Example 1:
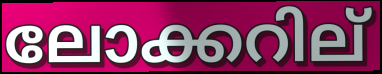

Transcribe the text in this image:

ലോക്കറില്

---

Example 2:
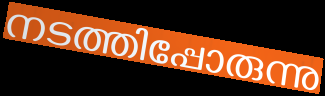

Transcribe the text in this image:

നടത്തിപ്പോരുന്നു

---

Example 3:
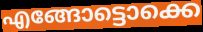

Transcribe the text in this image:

എങ്ങോട്ടൊക്കെ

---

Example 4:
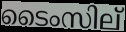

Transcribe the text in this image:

ടൈംസില്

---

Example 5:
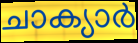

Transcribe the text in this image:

ചാക്യാർ